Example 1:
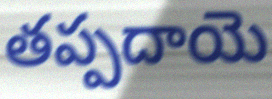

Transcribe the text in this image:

తప్పదాయె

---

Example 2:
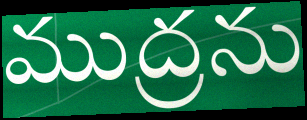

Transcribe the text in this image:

ముద్రను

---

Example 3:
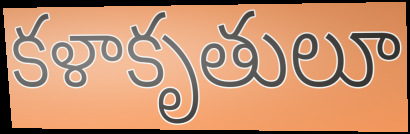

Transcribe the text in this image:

కళాకృతులూ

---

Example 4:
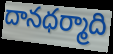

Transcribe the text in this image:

దానధర్మాది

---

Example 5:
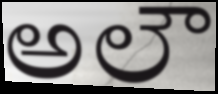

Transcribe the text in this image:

అలౌ